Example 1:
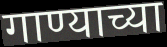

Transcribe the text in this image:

गाण्याच्या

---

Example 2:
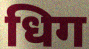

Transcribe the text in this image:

धिग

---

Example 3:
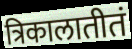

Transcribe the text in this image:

त्रिकालातीतं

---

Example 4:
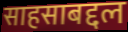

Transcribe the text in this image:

साहसाबद्दल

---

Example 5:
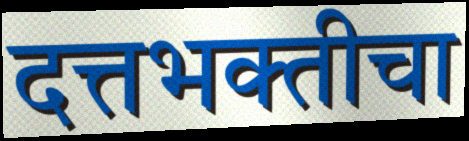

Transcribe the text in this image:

दत्तभक्तीचा